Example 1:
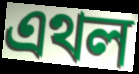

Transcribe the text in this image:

এথল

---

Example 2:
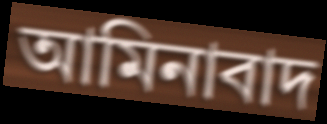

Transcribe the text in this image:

আমিনাবাদ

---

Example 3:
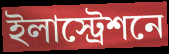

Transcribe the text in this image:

ইলাস্ট্রেশনে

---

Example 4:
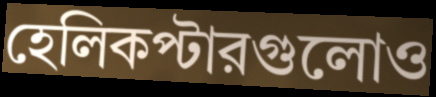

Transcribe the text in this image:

হেলিকপ্টারগুলোও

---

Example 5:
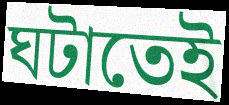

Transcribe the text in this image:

ঘটাতেই